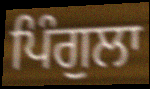
ਪਿੰਗੁਲਾ